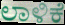
ಲಾಳಿಕೆ